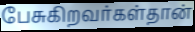
பேசுகிறவர்கள்தான்